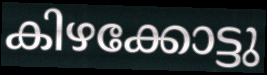
കിഴക്കോട്ടു